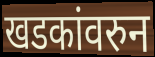
खडकांवरुन